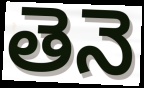
తెనె